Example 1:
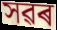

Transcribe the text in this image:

সৱৰ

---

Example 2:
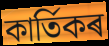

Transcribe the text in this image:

কাৰ্তিকৰ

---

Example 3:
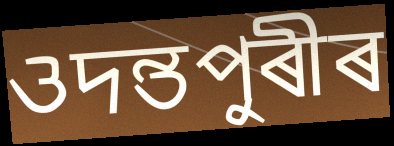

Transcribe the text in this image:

ওদন্তপুৰীৰ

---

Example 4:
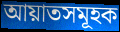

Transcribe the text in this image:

আয়াতসমূহক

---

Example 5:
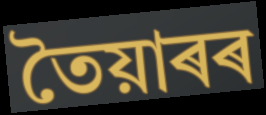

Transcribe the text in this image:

তৈয়াৰৰ